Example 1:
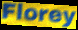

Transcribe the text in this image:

Florey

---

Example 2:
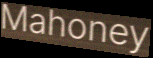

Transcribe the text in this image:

Mahoney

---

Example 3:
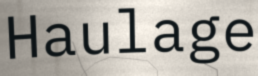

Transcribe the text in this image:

Haulage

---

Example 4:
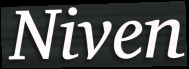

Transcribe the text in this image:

Niven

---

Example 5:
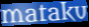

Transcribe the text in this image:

mataku